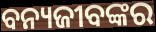
ବନ୍ୟଜୀବଙ୍କର